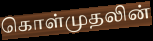
கொள்முதலின்